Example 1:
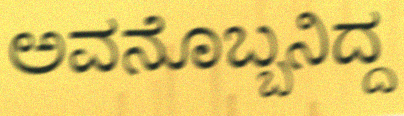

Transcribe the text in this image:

ಅವನೊಬ್ಬನಿದ್ದ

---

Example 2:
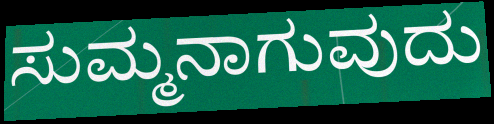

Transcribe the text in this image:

ಸುಮ್ಮನಾಗುವುದು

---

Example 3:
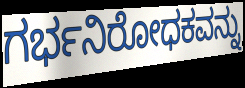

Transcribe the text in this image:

ಗರ್ಭನಿರೋಧಕವನ್ನು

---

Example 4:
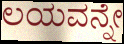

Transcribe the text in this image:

ಲಯವನ್ನೇ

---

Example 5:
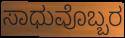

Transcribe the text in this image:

ಸಾಧುವೊಬ್ಬರ